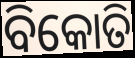
ବିକୋତି